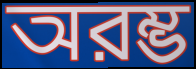
অরম্ভ